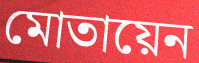
মোতায়েন